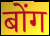
बोंग